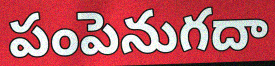
పంపెనుగదా